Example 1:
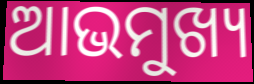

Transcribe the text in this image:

ଆଭମୁଖ୍ୟ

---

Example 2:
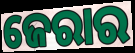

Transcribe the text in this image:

ଜେରାର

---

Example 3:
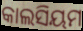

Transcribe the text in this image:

କାଲସିୟମ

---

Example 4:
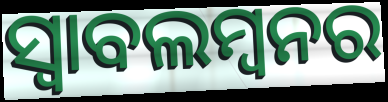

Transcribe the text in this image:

ସ୍ବାବଲମ୍ବନର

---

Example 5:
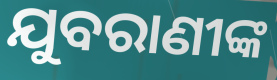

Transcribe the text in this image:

ଯୁବରାଣୀଙ୍କ